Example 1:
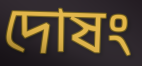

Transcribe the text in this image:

দোষং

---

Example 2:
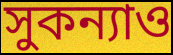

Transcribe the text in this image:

সুকন্যাও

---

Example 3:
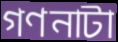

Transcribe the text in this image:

গণনাটা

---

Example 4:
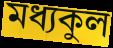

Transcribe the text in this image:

মধ্যকুল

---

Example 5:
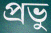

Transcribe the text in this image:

প্রভু